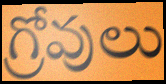
గ్రోవులు